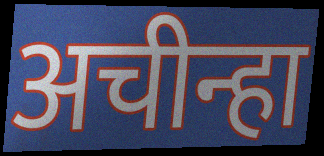
अचीन्हा